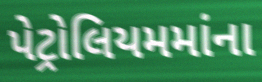
પેટ્રોલિયમમાંના